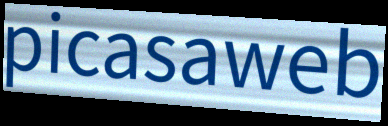
picasaweb